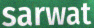
sarwat